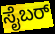
ಸೈಬರ್